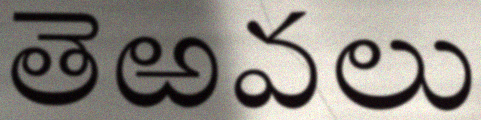
తెఱవలు